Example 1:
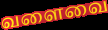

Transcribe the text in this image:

வளைவை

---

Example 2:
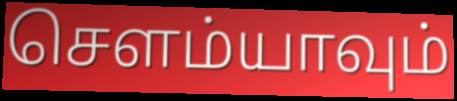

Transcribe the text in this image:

சௌம்யாவும்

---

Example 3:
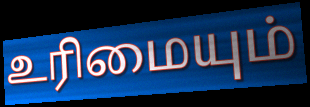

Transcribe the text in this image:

உரிமையும்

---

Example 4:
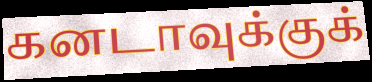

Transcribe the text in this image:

கனடாவுக்குக்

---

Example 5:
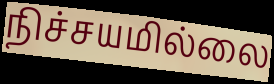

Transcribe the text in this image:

நிச்சயமில்லை